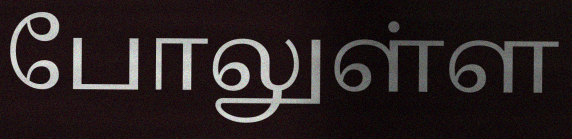
போலுள்ள